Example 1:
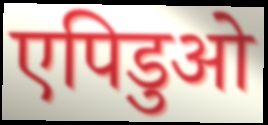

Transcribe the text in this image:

एपिडुओ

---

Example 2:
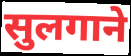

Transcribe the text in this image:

सुलगाने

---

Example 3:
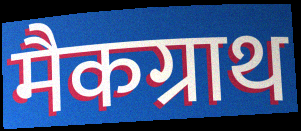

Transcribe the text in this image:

मैकग्राथ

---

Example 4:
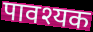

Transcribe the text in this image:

पावश्यक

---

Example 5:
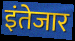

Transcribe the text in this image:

इंतेजार